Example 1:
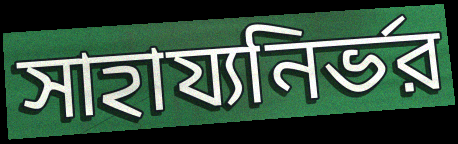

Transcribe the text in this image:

সাহায্যনির্ভর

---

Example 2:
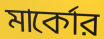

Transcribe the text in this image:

মার্কোর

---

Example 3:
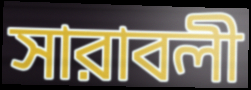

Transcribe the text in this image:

সারাবলী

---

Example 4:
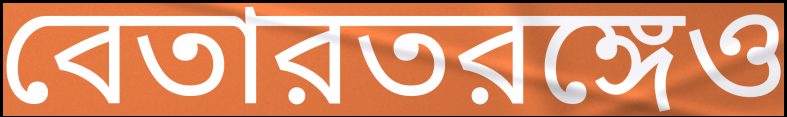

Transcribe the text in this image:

বেতারতরঙ্গেও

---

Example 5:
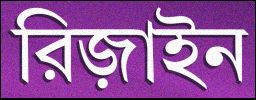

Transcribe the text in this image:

রিজ়াইন